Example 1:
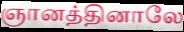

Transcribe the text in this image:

ஞானத்தினாலே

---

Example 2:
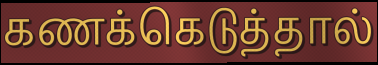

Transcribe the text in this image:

கணக்கெடுத்தால்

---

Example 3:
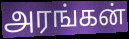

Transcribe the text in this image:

அரங்கன்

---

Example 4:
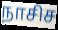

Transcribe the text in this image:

நாசிச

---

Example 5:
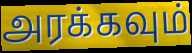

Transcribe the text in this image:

அரக்கவும்